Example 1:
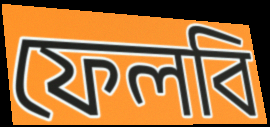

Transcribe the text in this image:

ফেলবি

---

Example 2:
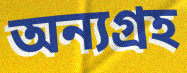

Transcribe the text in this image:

অন্যগ্রহ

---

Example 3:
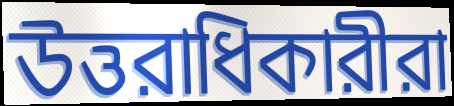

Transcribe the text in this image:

উত্তরাধিকারীরা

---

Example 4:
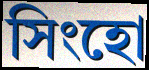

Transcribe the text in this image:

সিংহো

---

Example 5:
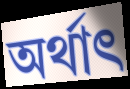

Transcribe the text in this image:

অর্থাৎ